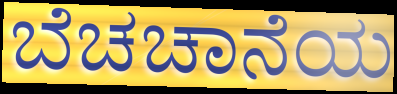
ಬೆಚಚಾನೆಯ